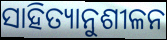
ସାହିତ୍ୟାନୁଶୀଳନ